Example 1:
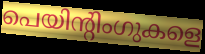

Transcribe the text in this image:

പെയിന്റിംഗുകളെ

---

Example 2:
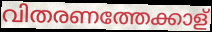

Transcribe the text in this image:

വിതരണത്തേക്കാള്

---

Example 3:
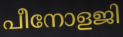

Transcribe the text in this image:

പീനോളജി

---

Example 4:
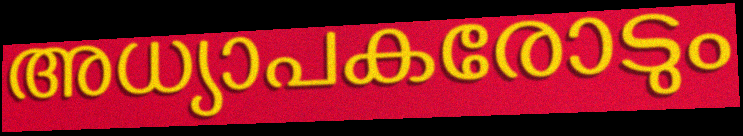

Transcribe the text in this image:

അധ്യാപകരോടും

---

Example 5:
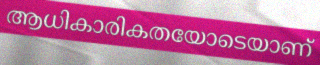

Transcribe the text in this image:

ആധികാരികതയോടെയാണ്